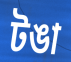
টঙা